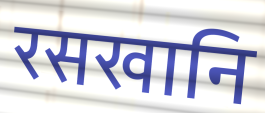
रसखानि